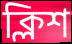
ক্লিশ